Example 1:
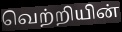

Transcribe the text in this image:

வெற்றியின்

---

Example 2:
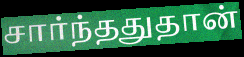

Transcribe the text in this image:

சார்ந்ததுதான்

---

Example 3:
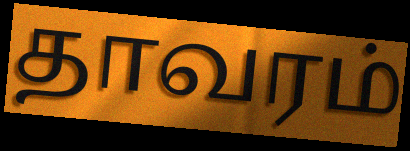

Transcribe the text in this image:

தாவரம்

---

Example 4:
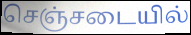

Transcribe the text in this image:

செஞ்சடையில்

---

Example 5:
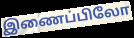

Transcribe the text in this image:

இணைப்பிலோ